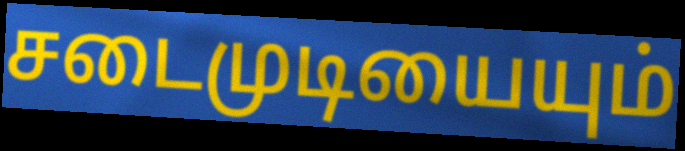
சடைமுடியையும்